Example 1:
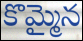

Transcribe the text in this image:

కొమ్మైన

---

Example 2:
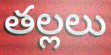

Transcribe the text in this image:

తల్లలు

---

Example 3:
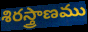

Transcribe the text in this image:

శిరస్త్రాణము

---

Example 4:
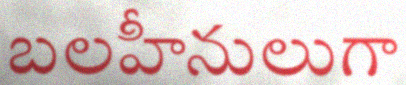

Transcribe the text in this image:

బలహీనులుగా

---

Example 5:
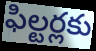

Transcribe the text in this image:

ఫిల్టర్లకు